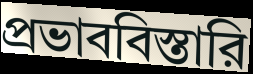
প্রভাববিস্তারি